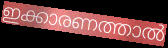
ഇക്കാരണത്താൽ